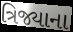
ત્રિજ્યાના